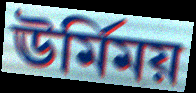
ঊর্মিময়